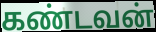
கண்டவன்